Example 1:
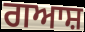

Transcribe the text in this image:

ਗਆਸ਼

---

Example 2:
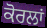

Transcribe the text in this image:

ਕੋਰਲਾਂ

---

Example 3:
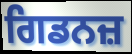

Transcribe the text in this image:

ਗਿਡਨਜ਼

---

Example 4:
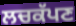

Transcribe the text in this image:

ਲਚਕੱਪਣ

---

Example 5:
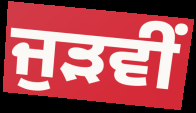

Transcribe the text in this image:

ਜੁੜਵੀਂ